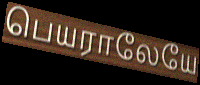
பெயராலேயே